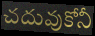
చదువుకోనీ